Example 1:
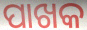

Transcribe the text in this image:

ପାଖକ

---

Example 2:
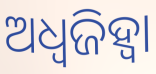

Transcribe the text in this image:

ଅଧ୍ୱଜିହ୍ବା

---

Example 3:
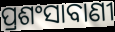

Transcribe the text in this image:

ପ୍ରଶଂସାବାଣୀ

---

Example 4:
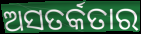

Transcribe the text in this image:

ଅସତର୍କତାର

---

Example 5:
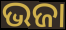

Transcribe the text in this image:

ଭଜା